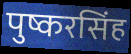
पुष्करसिंह